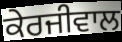
ਕੇਰਜੀਵਾਲ